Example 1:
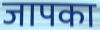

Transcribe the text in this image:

जापका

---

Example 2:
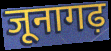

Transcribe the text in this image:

जूनागढ़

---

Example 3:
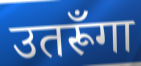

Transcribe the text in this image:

उतरूँगा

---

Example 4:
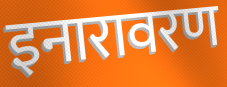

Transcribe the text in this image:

इनारावरण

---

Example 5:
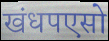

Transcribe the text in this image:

खंधपएसो